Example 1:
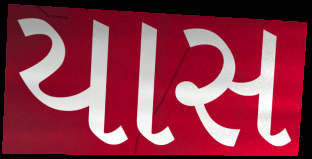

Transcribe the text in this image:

યાસ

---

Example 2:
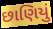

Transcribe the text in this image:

છાણિયું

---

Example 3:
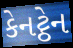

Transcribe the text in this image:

કેનટ્ઠેન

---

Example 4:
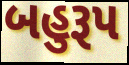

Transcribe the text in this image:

બહુરૂપ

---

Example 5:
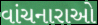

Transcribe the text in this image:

વાંચનારાઓ